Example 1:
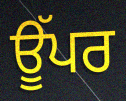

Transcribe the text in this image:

ਊੱਪਰ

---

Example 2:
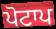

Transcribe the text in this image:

ਪੋਟਾਪ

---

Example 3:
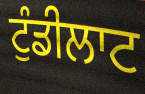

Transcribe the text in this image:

ਟੁੰਡੀਲਾਟ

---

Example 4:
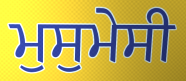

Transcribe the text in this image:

ਮੁਸੁਮੇਸੀ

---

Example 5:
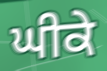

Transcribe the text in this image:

ਘੀਕੇ